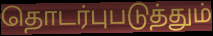
தொடர்புபடுத்தும்